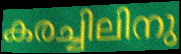
കരച്ചിലിനു